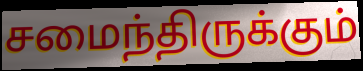
சமைந்திருக்கும்